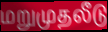
மறுமுதலீடு